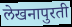
लेखनापुरती